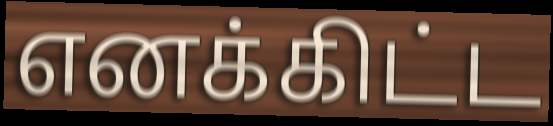
எனக்கிட்ட